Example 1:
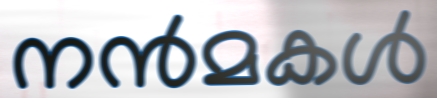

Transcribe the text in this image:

നൻമകൾ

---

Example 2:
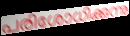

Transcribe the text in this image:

പരിശോധിക്കുന്നു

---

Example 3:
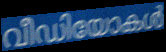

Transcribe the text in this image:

വീഡിയോകൾ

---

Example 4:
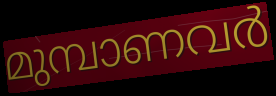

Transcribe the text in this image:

മുമ്പാണവർ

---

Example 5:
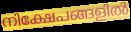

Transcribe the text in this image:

നിക്ഷേപങ്ങളിൽ